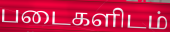
படைகளிடம்